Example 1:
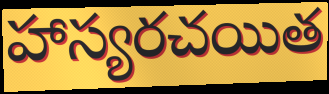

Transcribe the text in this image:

హాస్యరచయిత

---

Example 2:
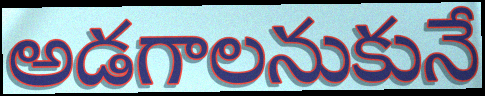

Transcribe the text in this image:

అడగాలనుకునే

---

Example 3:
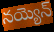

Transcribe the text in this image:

నయ్యెన్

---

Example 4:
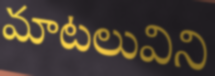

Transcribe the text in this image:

మాటలువిని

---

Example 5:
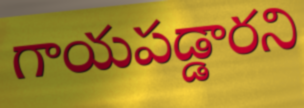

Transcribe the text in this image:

గాయపడ్డారని